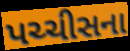
પચ્ચીસના